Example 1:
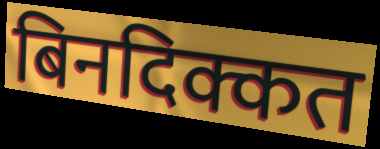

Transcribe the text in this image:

बिनदिक्कत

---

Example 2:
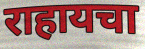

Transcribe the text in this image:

राहायचा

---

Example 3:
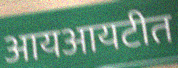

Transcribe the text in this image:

आयआयटीत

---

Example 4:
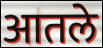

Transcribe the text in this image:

आतले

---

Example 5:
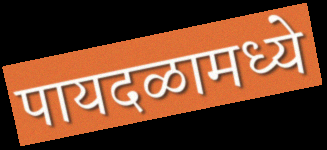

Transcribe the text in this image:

पायदळामध्ये